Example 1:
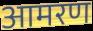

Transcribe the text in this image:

आमरण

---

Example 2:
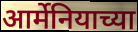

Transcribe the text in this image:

आर्मेनियाच्या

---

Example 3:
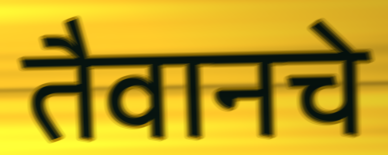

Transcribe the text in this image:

तैवानचे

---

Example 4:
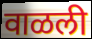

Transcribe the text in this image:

वाळली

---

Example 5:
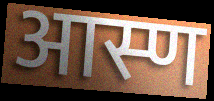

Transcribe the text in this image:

आस्ण